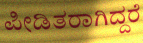
ಪೀಡಿತರಾಗಿದ್ದರೆ